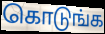
கொடுங்க